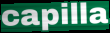
capilla